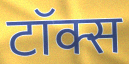
टॉक्स